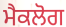
ਮੈਕਲੋਗ